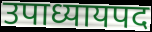
उपाध्यायपद